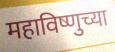
महाविष्णुच्या